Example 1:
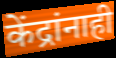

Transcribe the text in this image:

केंद्रांनाही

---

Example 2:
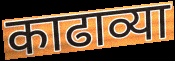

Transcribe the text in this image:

काढाव्या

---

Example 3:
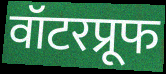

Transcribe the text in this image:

वॉटरप्रूफ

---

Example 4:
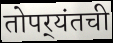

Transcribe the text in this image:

तोपर्यंतची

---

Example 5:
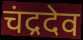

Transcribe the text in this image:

चंद्रदेव